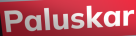
Paluskar